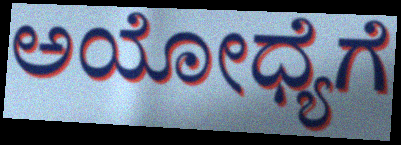
ಅಯೋಧ್ಯೆಗೆ